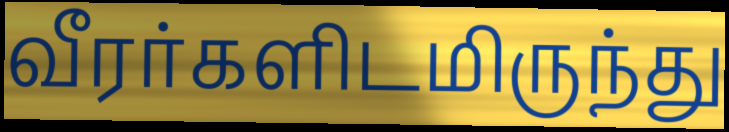
வீரர்களிடமிருந்து